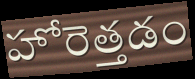
హోరెత్తడం